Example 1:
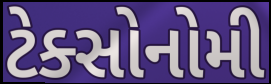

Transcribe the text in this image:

ટેક્સોનોમી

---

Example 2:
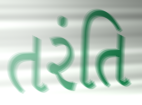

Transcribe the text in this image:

તરંતિ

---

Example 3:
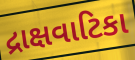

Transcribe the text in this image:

દ્રાક્ષવાટિકા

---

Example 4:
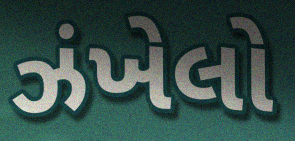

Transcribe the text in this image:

ઝંખેલો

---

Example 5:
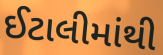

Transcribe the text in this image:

ઈટાલીમાંથી